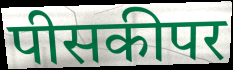
पीसकीपर